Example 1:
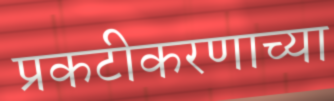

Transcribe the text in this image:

प्रकटीकरणाच्या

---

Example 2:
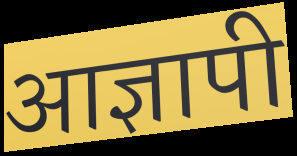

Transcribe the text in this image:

आज्ञापी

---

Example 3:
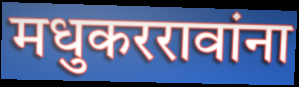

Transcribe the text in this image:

मधुकररावांना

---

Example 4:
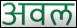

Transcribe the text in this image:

अवल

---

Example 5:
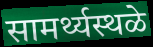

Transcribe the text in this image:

सामर्थ्यस्थळे